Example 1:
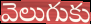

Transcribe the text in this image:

వెలుగుకు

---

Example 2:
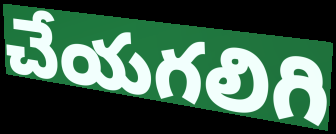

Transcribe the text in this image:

చేయగలిగి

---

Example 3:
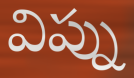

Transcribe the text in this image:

విప్ను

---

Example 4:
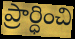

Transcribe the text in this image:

ప్రార్ధించి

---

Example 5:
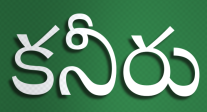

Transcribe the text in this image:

కనీరు